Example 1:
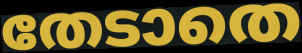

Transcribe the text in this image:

തേടാതെ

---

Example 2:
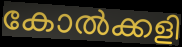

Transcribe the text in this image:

കോൽക്കളി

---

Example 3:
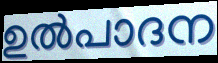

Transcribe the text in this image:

ഉൽപാദന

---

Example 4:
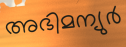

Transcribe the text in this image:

അഭിമന്യുർ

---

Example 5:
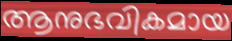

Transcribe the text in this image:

ആനുഭവികമായ